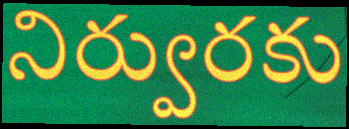
నిర్వురకు